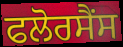
ਫਲੋਰਸੈਂਸ